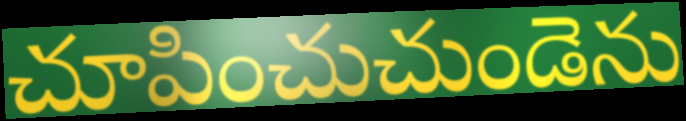
చూపించుచుండెను